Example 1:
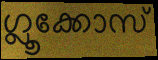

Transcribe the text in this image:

ഗ്ലൂക്കോസ്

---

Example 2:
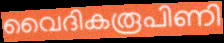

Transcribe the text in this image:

വൈദികരൂപിണി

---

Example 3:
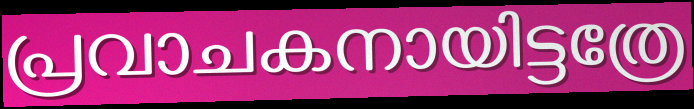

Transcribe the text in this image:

പ്രവാചകനായിട്ടത്രേ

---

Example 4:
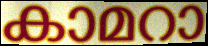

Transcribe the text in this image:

കാമറാ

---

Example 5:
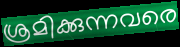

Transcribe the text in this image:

ശ്രമിക്കുന്നവരെ